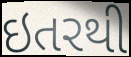
ઇતરથી